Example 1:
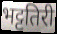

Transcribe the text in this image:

भट्टतिरी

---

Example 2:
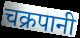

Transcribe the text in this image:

चक्रपानी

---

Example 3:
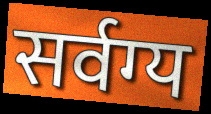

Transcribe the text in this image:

सर्वग्य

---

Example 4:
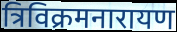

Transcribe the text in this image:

त्रिविक्रमनारायण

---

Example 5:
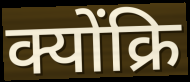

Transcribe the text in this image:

क्योंक्रि